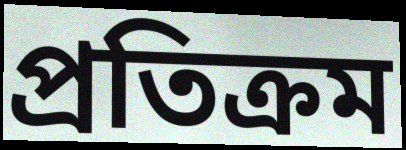
প্ৰতিক্ৰম